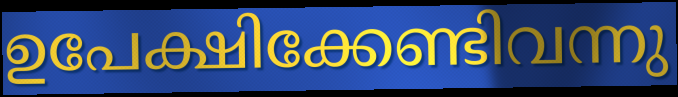
ഉപേക്ഷിക്കേണ്ടിവന്നു